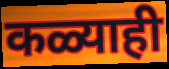
कळ्याही